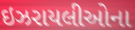
ઇઝરાયલીઓના